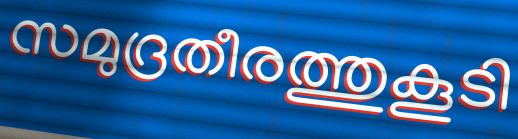
സമുദ്രതീരത്തുകൂടി